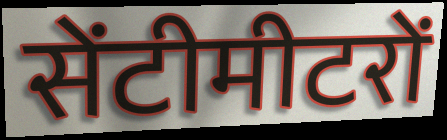
सेंटीमीटरों